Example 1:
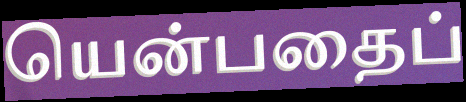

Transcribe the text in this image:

யென்பதைப்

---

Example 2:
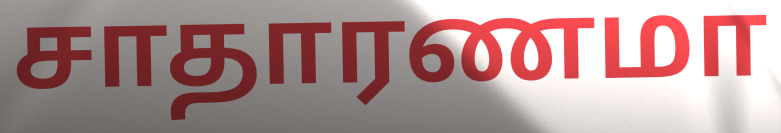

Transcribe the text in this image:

சாதாரணமா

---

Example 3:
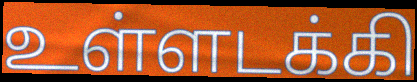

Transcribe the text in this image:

உள்ளடக்கி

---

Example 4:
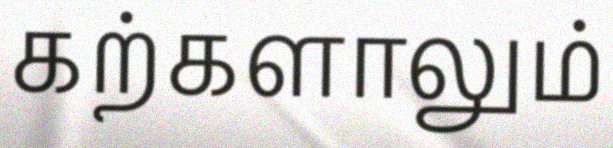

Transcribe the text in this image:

கற்களாலும்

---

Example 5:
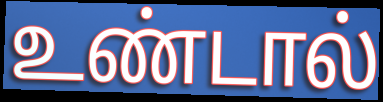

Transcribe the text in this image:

உண்டால்